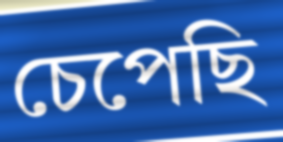
চেপেছি